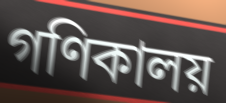
গণিকালয়